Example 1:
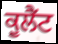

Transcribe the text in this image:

ਕੂਲੈਂਟ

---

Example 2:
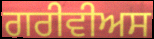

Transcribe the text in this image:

ਗਰੀਵੀਅਸ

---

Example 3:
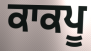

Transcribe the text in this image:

ਕਾਕਪੂ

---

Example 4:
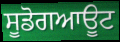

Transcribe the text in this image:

ਸੂਡੋਗਆਊਟ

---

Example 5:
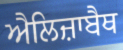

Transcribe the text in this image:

ਐਲਿਜ਼ਾਬੈਥ